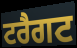
ਟਰੈਗਟ